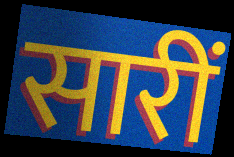
सारीं